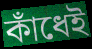
কাঁধেই